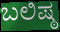
ಬಲಿಷ್ಠ